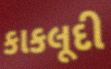
કાકલૂદી